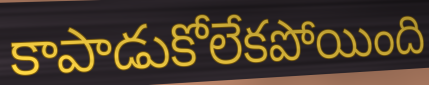
కాపాడుకోలేకపోయింది